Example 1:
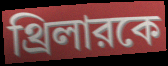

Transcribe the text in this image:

থ্রিলারকে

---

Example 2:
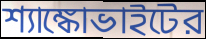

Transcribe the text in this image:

শ্যাঙ্কোভাইটের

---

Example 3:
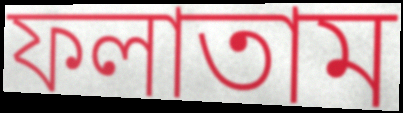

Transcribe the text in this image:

ফলাতাম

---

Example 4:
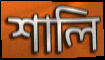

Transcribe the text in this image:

শালি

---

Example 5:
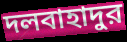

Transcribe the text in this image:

দলবাহাদুর